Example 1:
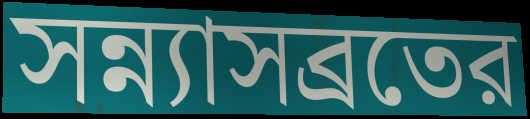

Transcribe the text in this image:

সন্ন্যাসব্রতের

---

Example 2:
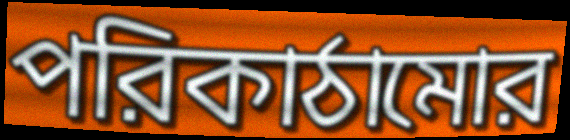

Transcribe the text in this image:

পরিকাঠামোর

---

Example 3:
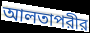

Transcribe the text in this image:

আলতাপরীর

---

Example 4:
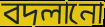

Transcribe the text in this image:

বদলানো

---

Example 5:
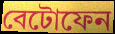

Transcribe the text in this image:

বেটোফেন